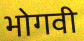
भोगवी